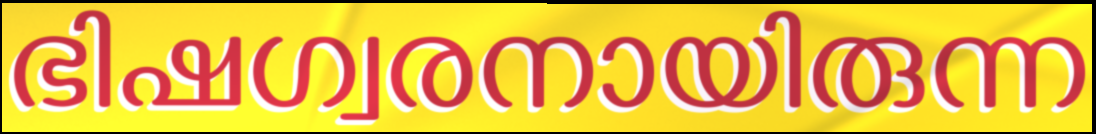
ഭിഷഗ്വരനായിരുന്ന